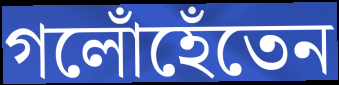
গলোঁহেঁতেন